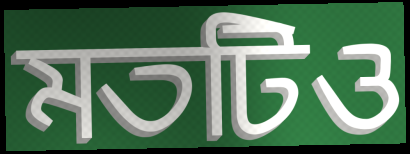
মতটিও